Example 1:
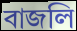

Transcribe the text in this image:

বাজলি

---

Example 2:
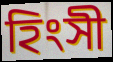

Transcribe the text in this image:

হিংসী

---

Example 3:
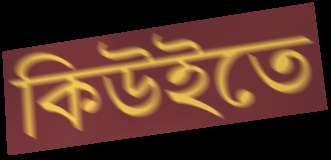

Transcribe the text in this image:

কিউইতে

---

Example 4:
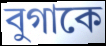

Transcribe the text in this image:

বুগাকে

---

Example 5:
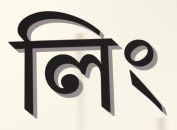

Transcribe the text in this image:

লিং